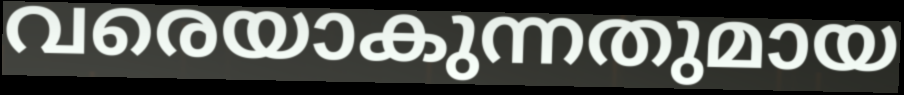
വരെയാകുന്നതുമായ